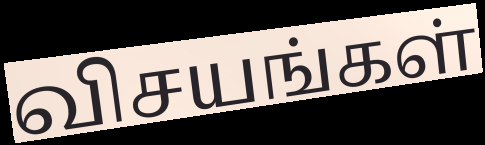
விசயங்கள்